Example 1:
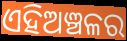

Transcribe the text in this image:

ଏହିଅଞ୍ଚଳର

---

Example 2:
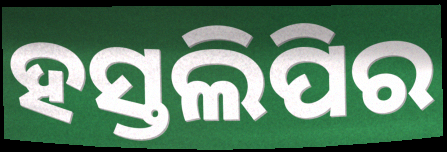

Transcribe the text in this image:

ହସ୍ତଲିପିର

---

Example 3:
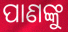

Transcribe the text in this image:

ପାଣଙ୍କୁ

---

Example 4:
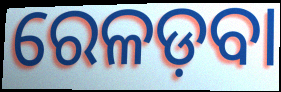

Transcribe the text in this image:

ରେଳଡ଼ବା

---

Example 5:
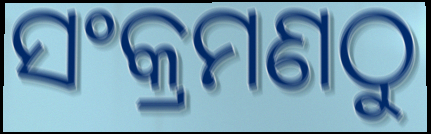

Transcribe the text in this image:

ସଂକ୍ରମଣଠୁ